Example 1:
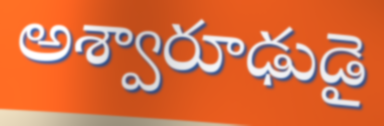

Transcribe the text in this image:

అశ్వారూఢుడై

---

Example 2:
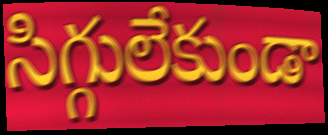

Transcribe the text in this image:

సిగ్గులేకుండా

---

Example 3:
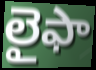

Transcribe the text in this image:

లైఫా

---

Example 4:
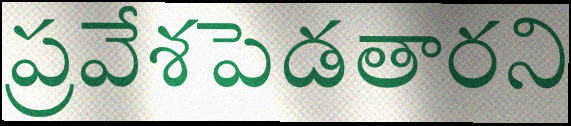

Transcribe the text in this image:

ప్రవేశపెడతారని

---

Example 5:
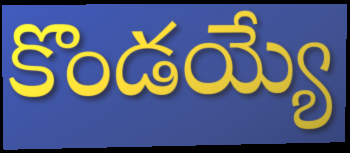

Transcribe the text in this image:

కొండయ్యే